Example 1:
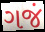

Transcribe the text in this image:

ગજં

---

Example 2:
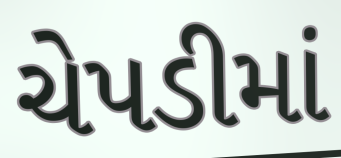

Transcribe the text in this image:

ચેપડીમાં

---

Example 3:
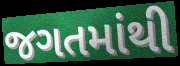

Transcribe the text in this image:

જગતમાંથી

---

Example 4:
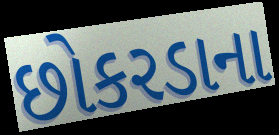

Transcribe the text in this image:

છોકરડાના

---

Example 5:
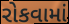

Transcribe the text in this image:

રોકવામાં